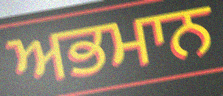
ਅਭਮਾਨ